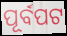
ପୂର୍ବପଟ